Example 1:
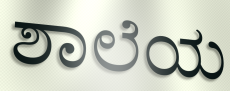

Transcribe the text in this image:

ಶಾಲೆಯ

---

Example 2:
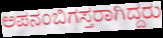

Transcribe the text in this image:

ಅಪನಂಬಿಗಸ್ತರಾಗಿದ್ದರು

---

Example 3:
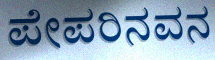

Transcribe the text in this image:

ಪೇಪರಿನವನ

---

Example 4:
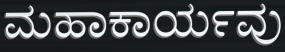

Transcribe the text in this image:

ಮಹಾಕಾರ್ಯವು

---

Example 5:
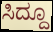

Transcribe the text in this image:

ಸಿದ್ದೂ